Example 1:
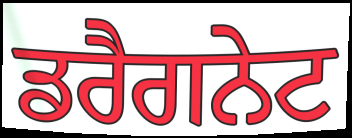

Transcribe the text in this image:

ਡਰੈਗਨੇਟ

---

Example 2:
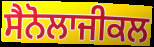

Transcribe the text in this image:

ਸੈਨੋਲਾਜੀਕਲ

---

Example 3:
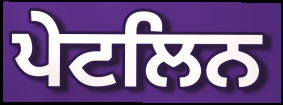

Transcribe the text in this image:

ਪੇਟਲਿਨ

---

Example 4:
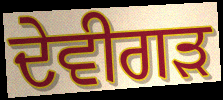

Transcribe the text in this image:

ਦੇਵੀਗੜ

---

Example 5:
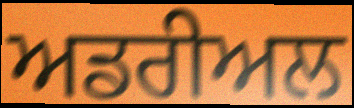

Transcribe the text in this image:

ਅਡਰੀਅਲ